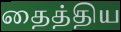
தைத்திய